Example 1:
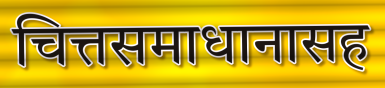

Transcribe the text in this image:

चित्तसमाधानासह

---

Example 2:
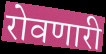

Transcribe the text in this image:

रोवणारी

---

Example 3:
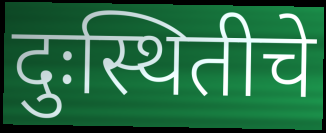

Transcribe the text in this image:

दुःस्थितीचे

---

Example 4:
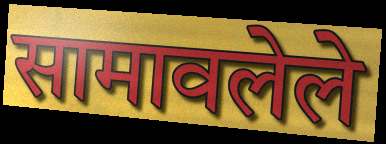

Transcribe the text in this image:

सामावलेले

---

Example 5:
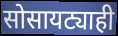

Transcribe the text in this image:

सोसायट्याही